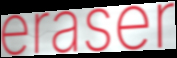
eraser